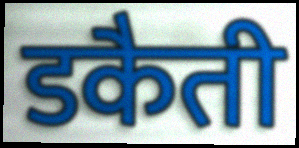
डकैती